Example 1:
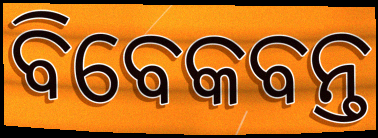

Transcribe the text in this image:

ବିବେକବନ୍ତ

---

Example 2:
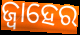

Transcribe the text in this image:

ଜ୍ୱାହେର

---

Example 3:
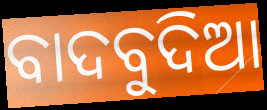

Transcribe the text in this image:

ବାଦବୁଦିଆ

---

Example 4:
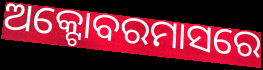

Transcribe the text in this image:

ଅକ୍ଟୋବରମାସରେ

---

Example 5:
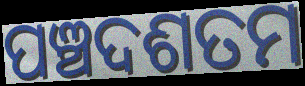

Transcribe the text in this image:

ପଞ୍ଚଦଶତମ